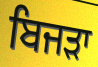
ਬਿਜੜਾ